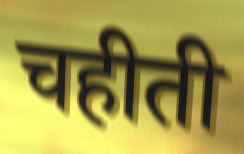
चहीती